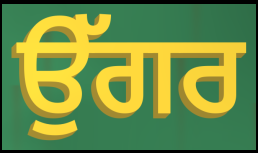
ਉੱਗਰ